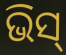
ଭିସ୍